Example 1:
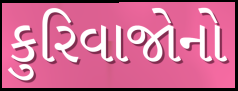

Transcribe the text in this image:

કુરિવાજોનો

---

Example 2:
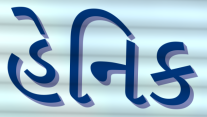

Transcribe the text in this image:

હેનિક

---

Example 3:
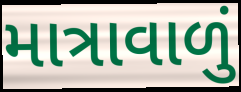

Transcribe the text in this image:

માત્રાવાળું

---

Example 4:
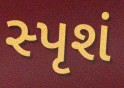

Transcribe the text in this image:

સ્પૃશં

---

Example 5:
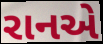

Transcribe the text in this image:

રાનએ